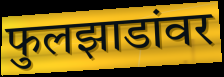
फुलझाडांवर